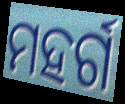
ମହର୍ଗ